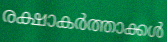
രക്ഷാകർത്താക്കൾ